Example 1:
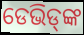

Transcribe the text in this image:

ଡେଭିଡ୍‌ଙ୍କ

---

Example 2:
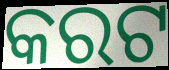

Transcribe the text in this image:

କରଟ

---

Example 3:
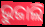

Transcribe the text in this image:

ଭୁଜାଲି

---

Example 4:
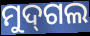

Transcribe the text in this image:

ମୁଦ୍‌ଗଲ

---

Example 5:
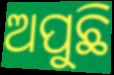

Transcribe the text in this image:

ଅପୁଛି